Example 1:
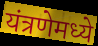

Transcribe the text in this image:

यंत्रणेमध्ये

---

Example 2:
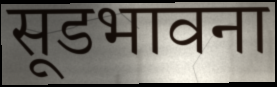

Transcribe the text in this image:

सूडभावना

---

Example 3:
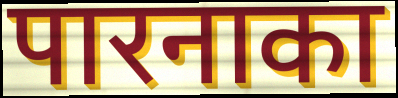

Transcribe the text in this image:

पारनाका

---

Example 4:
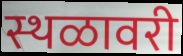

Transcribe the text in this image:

स्थळावरी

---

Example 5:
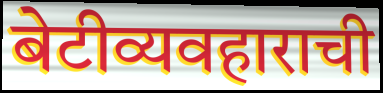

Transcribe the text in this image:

बेटीव्यवहाराची